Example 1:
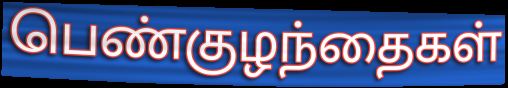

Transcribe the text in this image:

பெண்குழந்தைகள்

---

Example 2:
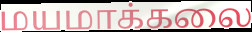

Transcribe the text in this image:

மயமாக்கலை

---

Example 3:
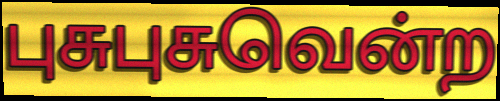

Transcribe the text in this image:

புசுபுசுவென்ற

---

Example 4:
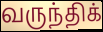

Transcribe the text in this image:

வருந்திக்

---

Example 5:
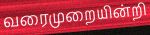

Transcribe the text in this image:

வரைமுறையின்றி